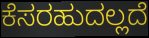
ಕೆಸರಹುದಲ್ಲದೆ